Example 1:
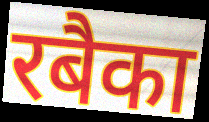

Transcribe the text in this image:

रबैका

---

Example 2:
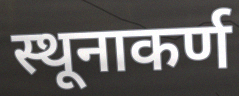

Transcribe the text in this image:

स्थूनाकर्ण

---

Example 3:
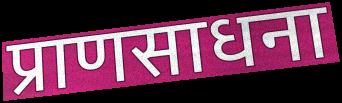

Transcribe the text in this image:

प्राणसाधना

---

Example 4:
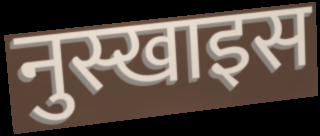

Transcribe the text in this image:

नुस्खाइस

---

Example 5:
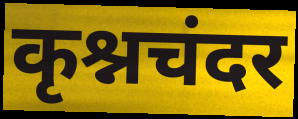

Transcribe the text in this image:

कृश्नचंदर